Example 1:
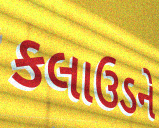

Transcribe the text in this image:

કલાઉડને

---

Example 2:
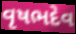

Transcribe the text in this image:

વૃષભદેવ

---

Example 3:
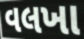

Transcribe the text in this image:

વલખા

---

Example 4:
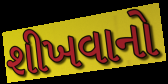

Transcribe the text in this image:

શીખવાનો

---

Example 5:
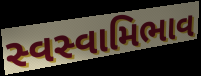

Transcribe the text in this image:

સ્વસ્વામિભાવ